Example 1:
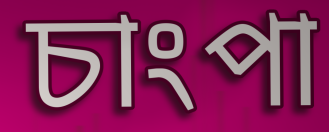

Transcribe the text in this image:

চাংপা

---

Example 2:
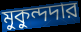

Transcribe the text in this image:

মুকুন্দদার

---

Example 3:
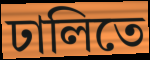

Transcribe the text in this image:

ঢালিতে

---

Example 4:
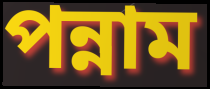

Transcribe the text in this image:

পন্নাম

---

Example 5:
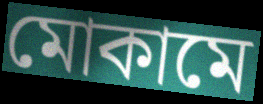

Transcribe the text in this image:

মোকামে